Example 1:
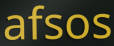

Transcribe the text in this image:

afsos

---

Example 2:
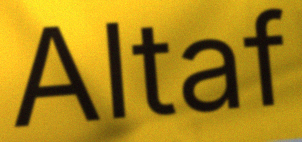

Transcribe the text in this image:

Altaf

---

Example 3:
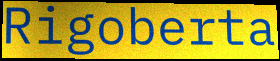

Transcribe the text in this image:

Rigoberta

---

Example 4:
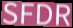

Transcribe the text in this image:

SFDR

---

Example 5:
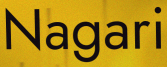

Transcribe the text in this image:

Nagari